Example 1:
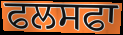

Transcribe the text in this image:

ਫਲਸਫਾ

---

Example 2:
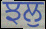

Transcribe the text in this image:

ਝਲੁ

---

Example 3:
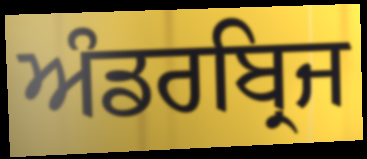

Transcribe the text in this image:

ਅੰਡਰਬ੍ਰਿਜ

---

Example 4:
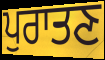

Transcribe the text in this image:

ਪੁਰਾਤਣ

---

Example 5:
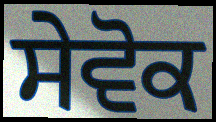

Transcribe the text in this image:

ਸੇਵੋਕ